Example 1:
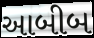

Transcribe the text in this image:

આબીબ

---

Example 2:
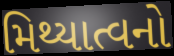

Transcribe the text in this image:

મિથ્યાત્વનો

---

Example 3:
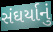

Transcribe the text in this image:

સંઘર્યાનું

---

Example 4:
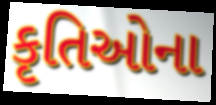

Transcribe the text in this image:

કૃતિઓના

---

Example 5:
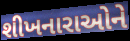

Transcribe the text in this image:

શીખનારાઓને